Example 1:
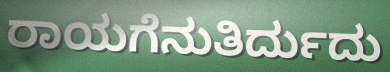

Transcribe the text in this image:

ರಾಯಗೆನುತಿರ್ದುದು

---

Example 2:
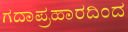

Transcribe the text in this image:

ಗದಾಪ್ರಹಾರದಿಂದ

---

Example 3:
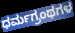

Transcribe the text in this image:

ಧರ್ಮಗ್ರಂಥಗಳ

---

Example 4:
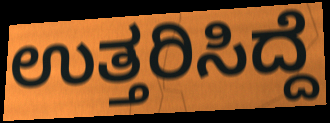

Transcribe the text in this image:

ಉತ್ತರಿಸಿದ್ದೆ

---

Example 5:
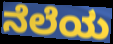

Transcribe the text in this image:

ನೆಲೆಯ